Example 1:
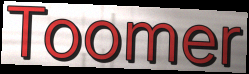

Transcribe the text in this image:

Toomer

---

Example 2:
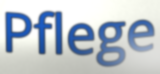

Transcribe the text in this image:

Pflege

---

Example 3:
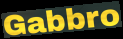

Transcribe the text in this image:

Gabbro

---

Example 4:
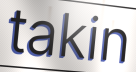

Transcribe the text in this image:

takin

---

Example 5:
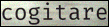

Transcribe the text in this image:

cogitare